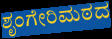
ಶೃಂಗೇರಿಮಠದ